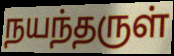
நயந்தருள்